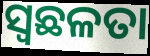
ସ୍ୱଛଳତା